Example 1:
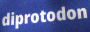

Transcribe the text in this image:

diprotodon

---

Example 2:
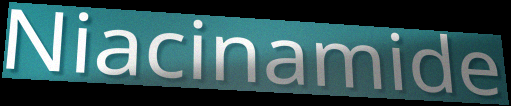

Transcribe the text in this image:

Niacinamide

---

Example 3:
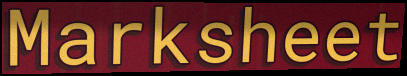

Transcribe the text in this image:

Marksheet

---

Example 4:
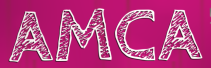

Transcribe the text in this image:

AMCA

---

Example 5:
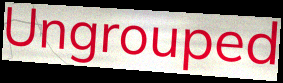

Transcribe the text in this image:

Ungrouped